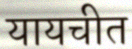
यायचीत